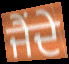
ਜੈਂਦੇ